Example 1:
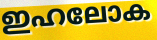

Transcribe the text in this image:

ഇഹലോക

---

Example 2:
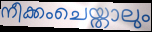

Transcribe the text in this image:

നീക്കംചെയ്താലും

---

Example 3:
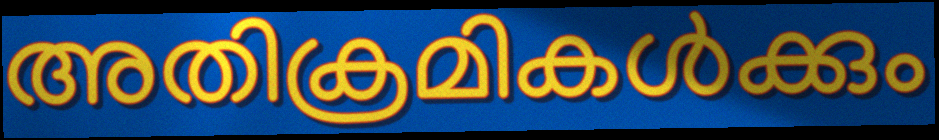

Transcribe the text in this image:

അതിക്രമികൾക്കും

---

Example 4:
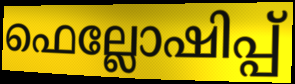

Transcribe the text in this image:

ഫെല്ലോഷിപ്പ്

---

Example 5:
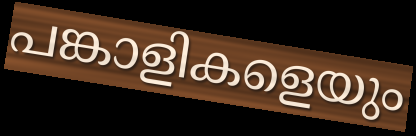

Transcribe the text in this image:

പങ്കാളികളെയും